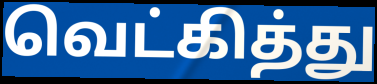
வெட்கித்து